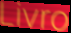
Livro